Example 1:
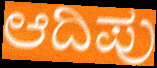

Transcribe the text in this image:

ಆದಿಪು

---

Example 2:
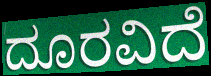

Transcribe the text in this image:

ದೂರವಿದೆ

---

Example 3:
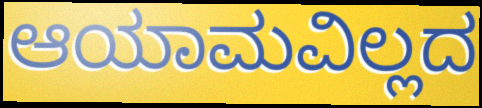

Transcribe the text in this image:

ಆಯಾಮವಿಲ್ಲದ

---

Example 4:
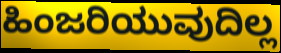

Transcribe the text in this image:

ಹಿಂಜರಿಯುವುದಿಲ್ಲ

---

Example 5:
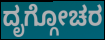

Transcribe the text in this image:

ದೃಗ್ಗೋಚರ